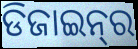
ଡିଜାଇନ୍‌ର